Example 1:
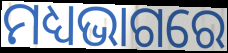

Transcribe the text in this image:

ମଧ୍ୟଭାଗରେ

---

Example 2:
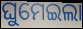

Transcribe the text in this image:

ଘୁମେଇଲା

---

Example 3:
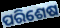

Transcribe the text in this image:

ପରିଶେଷ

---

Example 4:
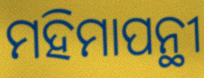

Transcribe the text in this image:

ମହିମାପନ୍ଥୀ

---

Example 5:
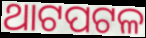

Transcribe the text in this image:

ଥାଟପଟଳ